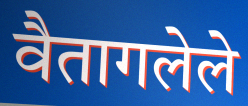
वैतागलेले